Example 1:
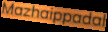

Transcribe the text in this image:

Mazhaippadal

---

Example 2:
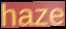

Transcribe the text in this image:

haze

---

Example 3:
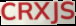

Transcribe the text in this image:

CRXJS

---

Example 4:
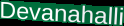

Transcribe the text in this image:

Devanahalli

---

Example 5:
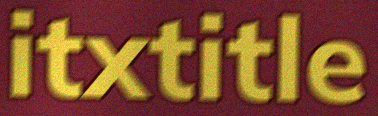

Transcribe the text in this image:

itxtitle